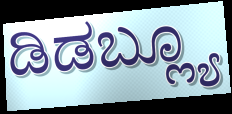
ಡಿಡಬ್ಲ್ಯೂ